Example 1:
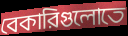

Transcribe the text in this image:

বেকারিগুলোতে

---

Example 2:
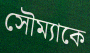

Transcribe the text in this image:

সৌম্যাকে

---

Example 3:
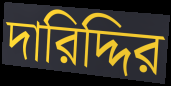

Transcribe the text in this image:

দারিদ্দির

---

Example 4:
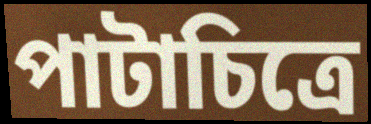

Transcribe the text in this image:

পাটাচিত্রে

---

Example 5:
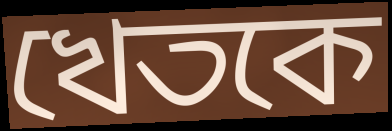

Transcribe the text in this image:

খেতকে